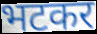
भटकर